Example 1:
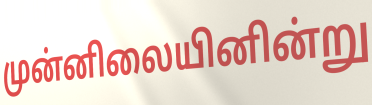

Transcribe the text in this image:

முன்னிலையினின்று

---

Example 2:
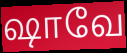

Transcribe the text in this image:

ஷாவே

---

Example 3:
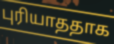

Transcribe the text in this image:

புரியாததாக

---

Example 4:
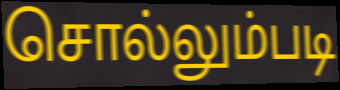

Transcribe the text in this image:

சொல்லும்படி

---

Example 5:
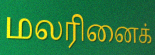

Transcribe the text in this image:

மலரினைக்